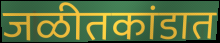
जळीतकांडात